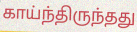
காய்ந்திருந்தது